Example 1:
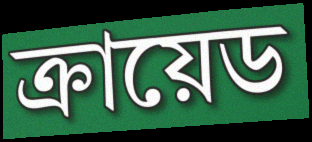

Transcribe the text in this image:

ক্রায়েড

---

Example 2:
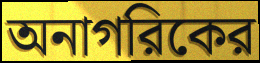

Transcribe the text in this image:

অনাগরিকের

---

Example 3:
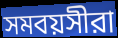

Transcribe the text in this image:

সমবয়সীরা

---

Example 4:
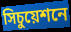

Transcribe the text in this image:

সিচুয়েশনে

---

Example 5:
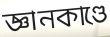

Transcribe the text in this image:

জ্ঞানকাণ্ডে